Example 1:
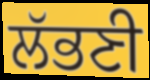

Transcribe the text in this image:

ਲੱਭਣੀ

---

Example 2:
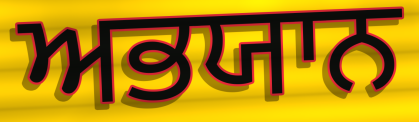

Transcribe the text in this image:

ਅਭਯਾਨ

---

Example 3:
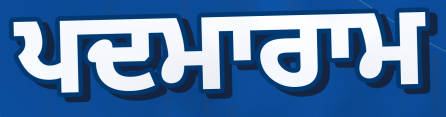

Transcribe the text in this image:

ਪਦਮਾਰਾਮ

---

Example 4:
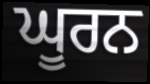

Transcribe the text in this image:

ਘੂਰਨ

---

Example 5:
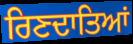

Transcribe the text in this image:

ਰਿਣਦਾਤਿਆਂ